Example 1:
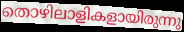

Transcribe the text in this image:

തൊഴിലാളികളായിരുന്നു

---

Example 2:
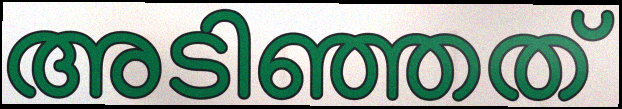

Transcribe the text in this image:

അടിഞ്ഞത്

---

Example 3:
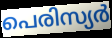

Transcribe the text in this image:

പെരിസ്യർ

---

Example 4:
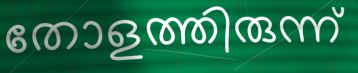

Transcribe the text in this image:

തോളത്തിരുന്ന്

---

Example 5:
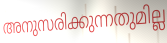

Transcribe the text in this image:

അനുസരിക്കുന്നതുമില്ല